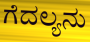
ಗೆದಲ್ಯನು